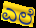
ಎಲೆ